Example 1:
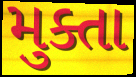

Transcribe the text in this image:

મુક્તા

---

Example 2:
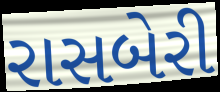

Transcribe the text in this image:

રાસબેરી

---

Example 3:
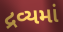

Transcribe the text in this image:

દ્રવ્યમાં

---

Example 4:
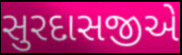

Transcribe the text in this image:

સુરદાસજીએ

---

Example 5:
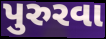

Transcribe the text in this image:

પુરુરવા